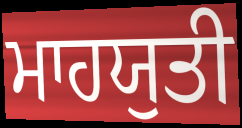
ਮਾਹਯੁਤੀ